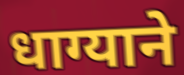
धाग्याने